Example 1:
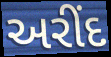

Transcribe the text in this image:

અરીંદ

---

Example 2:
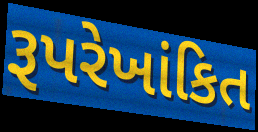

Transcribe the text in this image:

રૂપરેખાંકિત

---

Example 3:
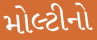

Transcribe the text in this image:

મોલ્ટીનો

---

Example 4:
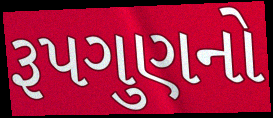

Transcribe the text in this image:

રૂપગુણનો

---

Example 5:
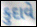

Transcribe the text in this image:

કુદાવે